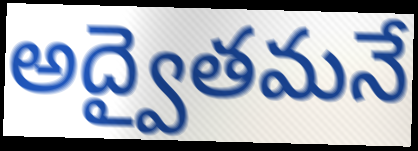
అద్వైతమనే